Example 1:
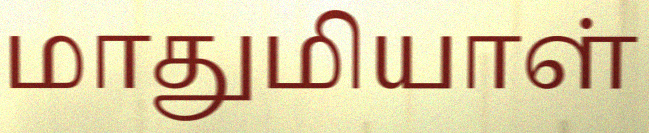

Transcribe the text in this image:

மாதுமியாள்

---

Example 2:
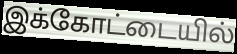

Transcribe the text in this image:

இக்கோட்டையில்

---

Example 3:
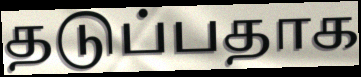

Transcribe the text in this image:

தடுப்பதாக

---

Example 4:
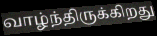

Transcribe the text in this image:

வாழ்ந்திருக்கிறது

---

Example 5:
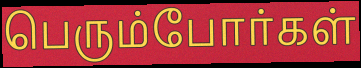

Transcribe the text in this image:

பெரும்போர்கள்